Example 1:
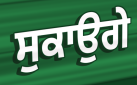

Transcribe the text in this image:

ਸੁਕਾਉਗੇ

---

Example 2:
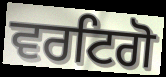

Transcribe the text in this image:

ਵਰਟਿਗੋ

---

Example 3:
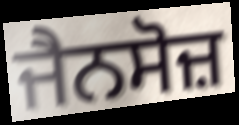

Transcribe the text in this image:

ਜੈਨਸੋਜ਼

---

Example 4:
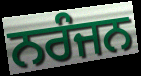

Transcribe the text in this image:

ਨਰੰਜਨ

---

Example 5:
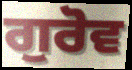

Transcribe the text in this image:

ਗੁਰੋਵ